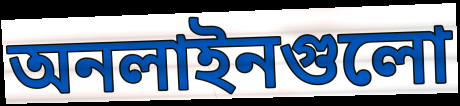
অনলাইনগুলো